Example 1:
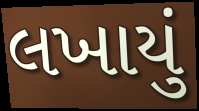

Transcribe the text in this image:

લખાયું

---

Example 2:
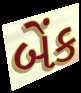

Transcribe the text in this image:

બેંક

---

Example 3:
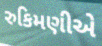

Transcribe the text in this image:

રુકિમણીએ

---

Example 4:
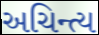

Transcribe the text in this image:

અચિન્ત્ય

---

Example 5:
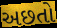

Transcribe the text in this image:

અછતો